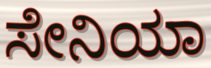
ಸೇನಿಯಾ